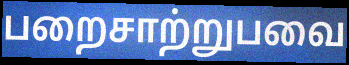
பறைசாற்றுபவை